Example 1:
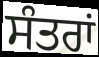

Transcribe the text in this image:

ਸੰਤਰਾਂ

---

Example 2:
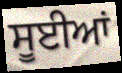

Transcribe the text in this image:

ਸੂਈਆਂ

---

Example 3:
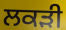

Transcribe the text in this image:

ਲਕੜੀ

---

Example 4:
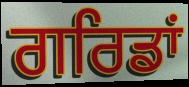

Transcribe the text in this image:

ਗਰਿਡਾਂ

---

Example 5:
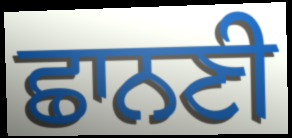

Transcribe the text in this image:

ਛਾਨਣੀ